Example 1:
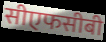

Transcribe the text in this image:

सीएफसीबी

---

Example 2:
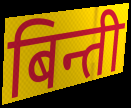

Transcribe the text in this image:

बिन्ती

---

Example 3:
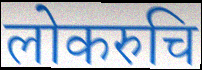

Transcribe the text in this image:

लोकरुचि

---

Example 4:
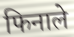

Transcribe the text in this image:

फिनाले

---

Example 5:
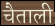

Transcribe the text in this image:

चैताली